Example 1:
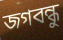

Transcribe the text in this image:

জগবন্ধু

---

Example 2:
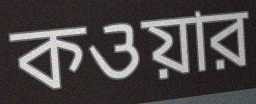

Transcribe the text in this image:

কওয়ার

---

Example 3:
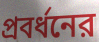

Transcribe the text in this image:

প্রবর্ধনের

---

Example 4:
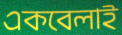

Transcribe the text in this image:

একবেলাই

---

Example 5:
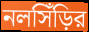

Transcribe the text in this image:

নলসিঁড়ির